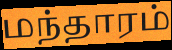
மந்தாரம்